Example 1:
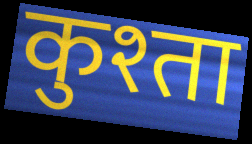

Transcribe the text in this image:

कुश्ता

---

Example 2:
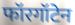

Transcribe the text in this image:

फॉरगॉटेन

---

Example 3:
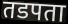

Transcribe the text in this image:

तडपता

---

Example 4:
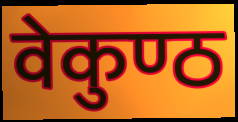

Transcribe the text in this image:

वेकुण्ठ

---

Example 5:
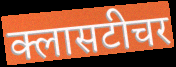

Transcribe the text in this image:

क्लासटीचर